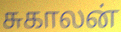
சுகாலன்